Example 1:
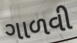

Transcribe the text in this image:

ગાળવી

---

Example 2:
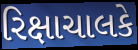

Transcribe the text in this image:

રિક્ષાચાલકે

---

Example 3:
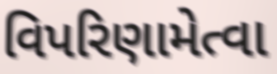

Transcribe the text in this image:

વિપરિણામેત્વા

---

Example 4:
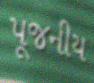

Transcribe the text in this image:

પૂજનીય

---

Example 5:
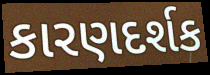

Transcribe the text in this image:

કારણદર્શક